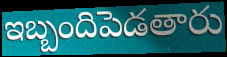
ఇబ్బందిపెడతారు